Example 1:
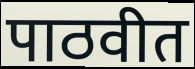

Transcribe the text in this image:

पाठवीत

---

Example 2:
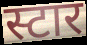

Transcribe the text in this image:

स्टार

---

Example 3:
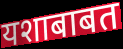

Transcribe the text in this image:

यशाबाबत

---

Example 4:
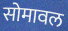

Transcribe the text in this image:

सोमावल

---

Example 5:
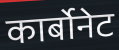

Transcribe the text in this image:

कार्बोनेट